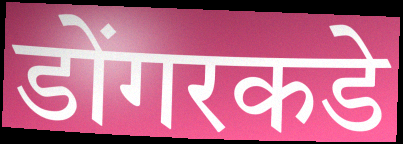
डोंगरकडे